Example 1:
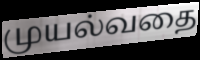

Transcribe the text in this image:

முயல்வதை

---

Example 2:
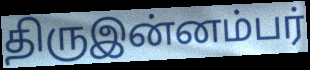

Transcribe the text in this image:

திருஇன்னம்பர்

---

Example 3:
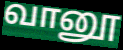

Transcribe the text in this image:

வானூ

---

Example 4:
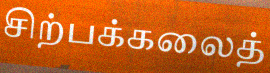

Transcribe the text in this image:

சிற்பக்கலைத்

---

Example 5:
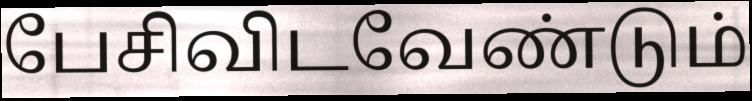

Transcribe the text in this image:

பேசிவிடவேண்டும்